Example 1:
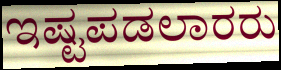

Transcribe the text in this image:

ಇಷ್ಟಪಡಲಾರರು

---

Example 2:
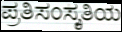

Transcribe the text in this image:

ಪ್ರತಿಸಂಸ್ಕೃತಿಯ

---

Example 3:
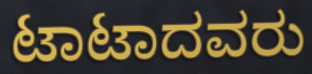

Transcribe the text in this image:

ಟಾಟಾದವರು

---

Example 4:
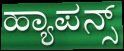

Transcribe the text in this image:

ಹ್ಯಾಪನ್ಸ್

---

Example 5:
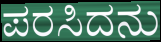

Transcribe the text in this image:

ಪರಸಿದನು